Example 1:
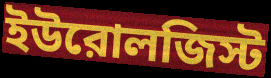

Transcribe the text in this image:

ইউরোলজিস্ট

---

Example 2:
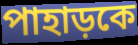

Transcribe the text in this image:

পাহাড়কে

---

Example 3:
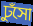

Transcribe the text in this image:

ঢুঁসো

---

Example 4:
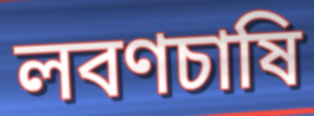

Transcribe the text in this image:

লবণচাষি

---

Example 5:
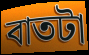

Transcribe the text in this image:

বাতটা